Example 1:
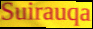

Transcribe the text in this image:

Suirauqa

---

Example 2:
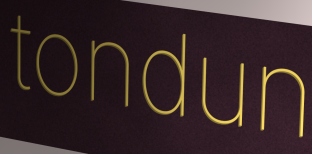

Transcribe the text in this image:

tondun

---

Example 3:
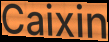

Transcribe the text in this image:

Caixin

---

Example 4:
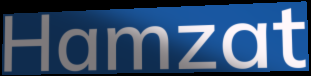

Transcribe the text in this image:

Hamzat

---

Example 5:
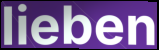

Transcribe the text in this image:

lieben